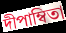
দীপাম্বিতা